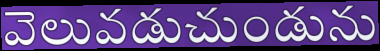
వెలువడుచుండును